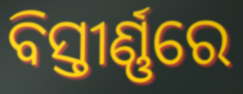
ବିସ୍ତୀର୍ଣ୍ଣରେ